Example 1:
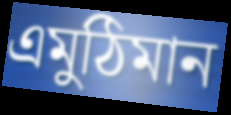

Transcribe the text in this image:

এমুঠিমান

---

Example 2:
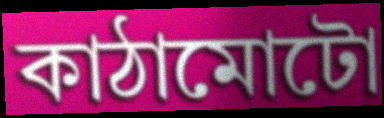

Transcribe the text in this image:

কাঠামোটো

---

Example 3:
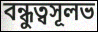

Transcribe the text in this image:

বন্ধুত্বসূলভ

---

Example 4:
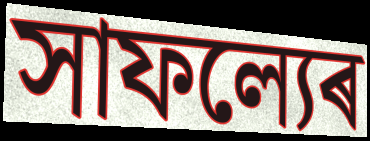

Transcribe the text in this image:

সাফল্যেৰ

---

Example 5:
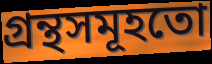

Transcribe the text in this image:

গ্ৰন্থসমূহতো